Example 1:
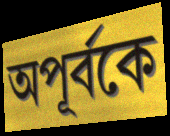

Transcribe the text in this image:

অপূর্বকে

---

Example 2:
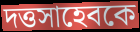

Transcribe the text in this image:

দত্তসাহেবকে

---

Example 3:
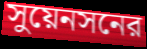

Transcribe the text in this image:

সুয়েনসনের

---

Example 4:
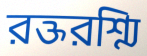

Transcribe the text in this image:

রক্তরশ্মি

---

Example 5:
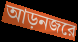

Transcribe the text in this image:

আড়নজরে